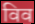
विव